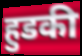
हुडकी